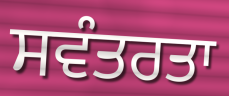
ਸਵੰਤਰਤਾ